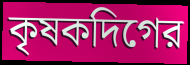
কৃষকদিগের